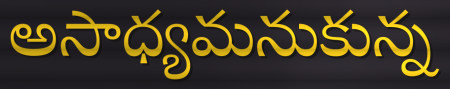
అసాధ్యమనుకున్న